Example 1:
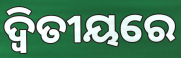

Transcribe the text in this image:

ଦ୍ୱିତୀୟରେ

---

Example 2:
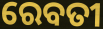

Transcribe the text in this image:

ରେବତୀ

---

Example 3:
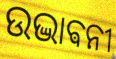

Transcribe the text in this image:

ଉଦ୍ଭାଵନୀ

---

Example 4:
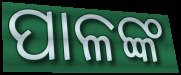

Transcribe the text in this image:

ପାଳଙ୍କ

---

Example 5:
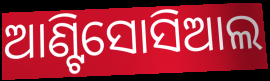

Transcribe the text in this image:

ଆଣ୍ଟିସୋସିଆଲ